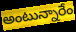
అంటున్నారేం